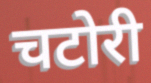
चटोरी